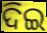
ଦିଇ